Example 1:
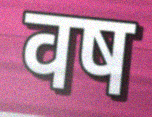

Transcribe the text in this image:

वष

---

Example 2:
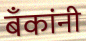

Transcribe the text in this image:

बॅंकांनी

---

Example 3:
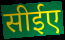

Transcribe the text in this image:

सीईए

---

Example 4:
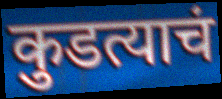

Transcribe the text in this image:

कुडत्याचं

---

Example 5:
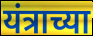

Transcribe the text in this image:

यंत्राच्या